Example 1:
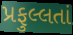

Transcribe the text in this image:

પ્રફુલ્લતાં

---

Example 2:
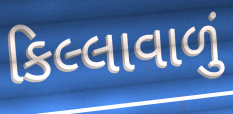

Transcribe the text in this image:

કિલ્લાવાળું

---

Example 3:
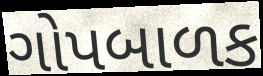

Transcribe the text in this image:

ગોપબાળક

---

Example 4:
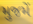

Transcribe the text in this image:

મુજમેં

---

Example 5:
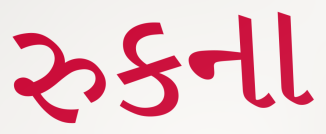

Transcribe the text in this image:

રુકના